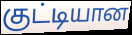
குட்டியான